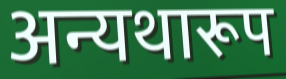
अन्यथारूप